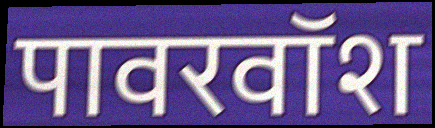
पावरवॉश